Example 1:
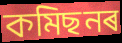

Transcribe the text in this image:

কমিছনৰ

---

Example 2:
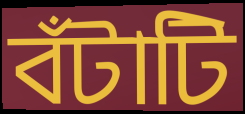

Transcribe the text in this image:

বঁটাটি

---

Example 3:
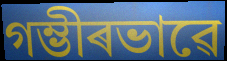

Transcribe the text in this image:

গম্ভীৰভাৱে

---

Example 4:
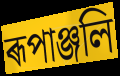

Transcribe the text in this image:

ৰূপাঞ্জলি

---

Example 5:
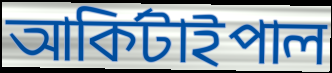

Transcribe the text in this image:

আৰ্কিটাইপাল